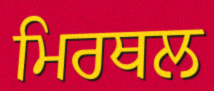
ਮਿਰਥਲ